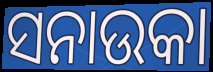
ସନାଉକା